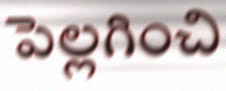
పెల్లగించి